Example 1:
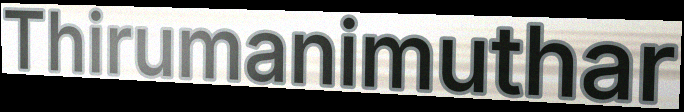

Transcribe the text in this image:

Thirumanimuthar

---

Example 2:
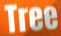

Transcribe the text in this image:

Tree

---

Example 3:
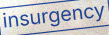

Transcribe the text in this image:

insurgency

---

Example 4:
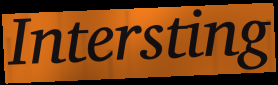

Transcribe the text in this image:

Intersting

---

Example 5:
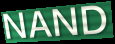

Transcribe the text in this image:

NAND